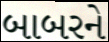
બાબરને